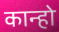
कान्हो